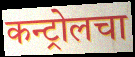
कन्ट्रोलचा